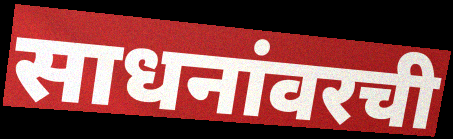
साधनांवरची